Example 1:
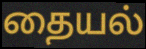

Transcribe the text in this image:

தையல்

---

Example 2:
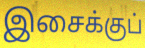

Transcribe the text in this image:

இசைக்குப்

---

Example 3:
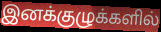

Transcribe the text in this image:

இனக்குழுக்களில்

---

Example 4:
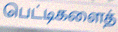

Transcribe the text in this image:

பெட்டிகளைத்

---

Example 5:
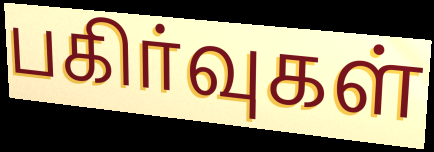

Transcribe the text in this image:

பகிர்வுகள்